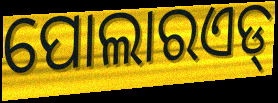
ପୋଲାରଏଡ୍